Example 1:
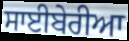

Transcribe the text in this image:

ਸਾਈਬੇਰੀਆ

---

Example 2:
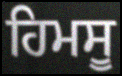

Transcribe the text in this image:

ਹਿਮਸੂ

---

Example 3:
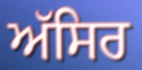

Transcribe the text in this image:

ਅੱਸਿਰ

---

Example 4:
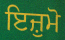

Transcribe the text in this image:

ਇਜ਼ੁਮੋ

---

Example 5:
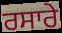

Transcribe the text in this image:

ਰਸਾਰੇ